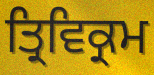
ਤ੍ਰਿਵਿਕ੍ਰਮ